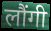
लौंगी